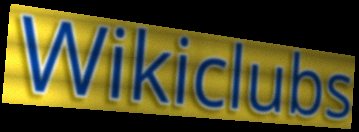
Wikiclubs